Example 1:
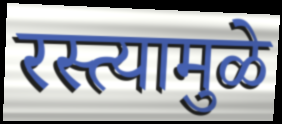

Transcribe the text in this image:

रस्त्यामुळे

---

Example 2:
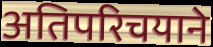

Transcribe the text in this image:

अतिपरिचयाने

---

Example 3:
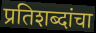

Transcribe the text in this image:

प्रतिशब्दांचा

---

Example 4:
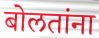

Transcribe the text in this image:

बोलतांना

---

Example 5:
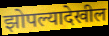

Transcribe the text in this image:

झोपल्यादेखील